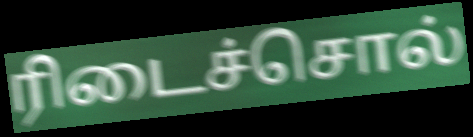
ரிடைச்சொல்